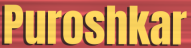
Puroshkar